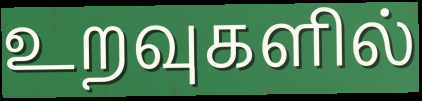
உறவுகளில்